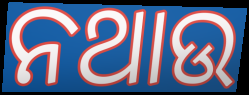
ନଥାଉ